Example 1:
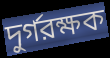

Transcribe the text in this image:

দুর্গরক্ষক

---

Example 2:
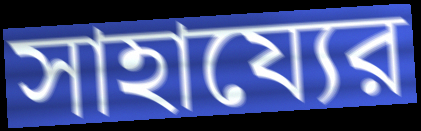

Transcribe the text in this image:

সাহায্যের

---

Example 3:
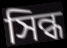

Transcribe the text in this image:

সিন্ধ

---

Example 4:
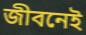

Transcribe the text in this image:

জীবনেই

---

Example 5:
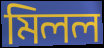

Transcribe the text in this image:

মিলল